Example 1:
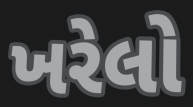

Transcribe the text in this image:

ખરેલો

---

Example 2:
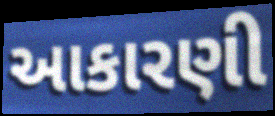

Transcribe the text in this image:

આકારણી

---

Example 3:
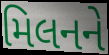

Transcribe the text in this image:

મિલનને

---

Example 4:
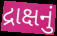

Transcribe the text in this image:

દ્રાક્ષનું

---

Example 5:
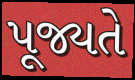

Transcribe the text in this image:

પૂજ્યતે